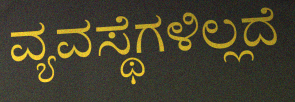
ವ್ಯವಸ್ಥೆಗಳಿಲ್ಲದೆ